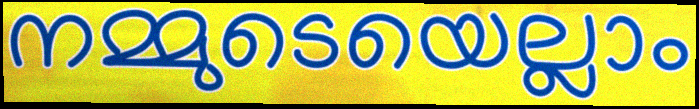
നമ്മുടെയെല്ലാം